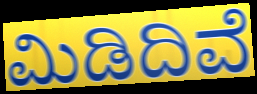
ಮಿಡಿದಿವೆ